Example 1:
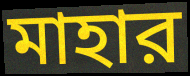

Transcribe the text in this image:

মাহার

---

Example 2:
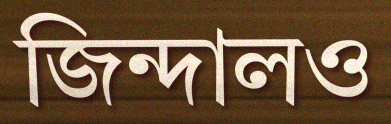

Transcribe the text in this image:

জিন্দালও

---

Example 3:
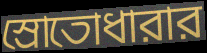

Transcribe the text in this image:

স্রোতোধারার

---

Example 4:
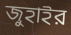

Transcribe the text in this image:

জুহাইর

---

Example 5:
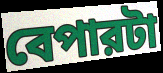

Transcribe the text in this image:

বেপারটা